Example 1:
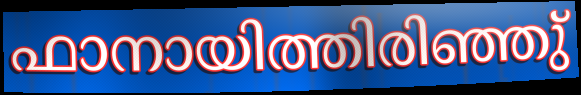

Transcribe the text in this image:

ഫാനായിത്തിരിഞ്ഞു്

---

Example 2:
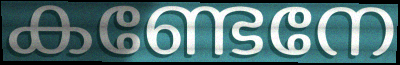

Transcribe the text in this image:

കണ്ടേനേ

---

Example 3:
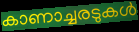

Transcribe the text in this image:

കാണാച്ചരടുകൾ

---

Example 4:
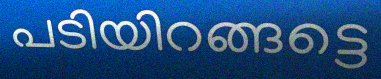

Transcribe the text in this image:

പടിയിറങ്ങട്ടെ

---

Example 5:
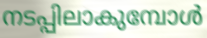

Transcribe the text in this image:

നടപ്പിലാകുമ്പോൾ